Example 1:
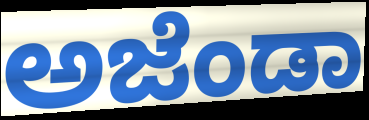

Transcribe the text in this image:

ಅಜೆಂಡಾ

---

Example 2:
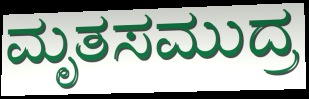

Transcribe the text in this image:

ಮೃತಸಮುದ್ರ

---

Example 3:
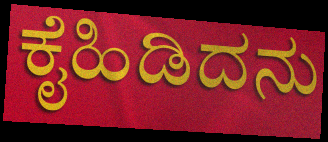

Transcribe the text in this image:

ಕೈಹಿಡಿದನು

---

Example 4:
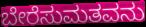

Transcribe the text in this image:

ಬೇರೆಸುಮತವನು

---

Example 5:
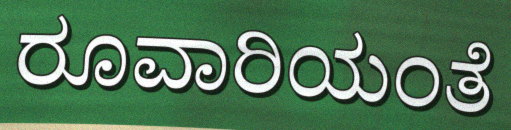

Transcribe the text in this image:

ರೂವಾರಿಯಂತೆ